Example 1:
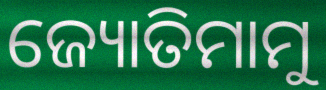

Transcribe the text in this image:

ଜ୍ୟୋତିମାମୁ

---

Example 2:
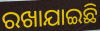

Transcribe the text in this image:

ରଖାଯାଇଛି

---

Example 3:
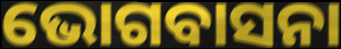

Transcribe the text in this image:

ଭୋଗବାସନା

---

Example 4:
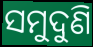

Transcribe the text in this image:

ସମୁଦୁଣି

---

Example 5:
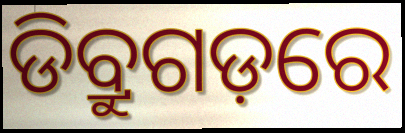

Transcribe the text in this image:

ଡିବ୍ରୁଗଡ଼ରେ